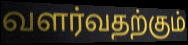
வளர்வதற்கும்